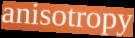
anisotropy